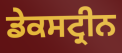
ਡੇਕਸਟ੍ਰੀਨ